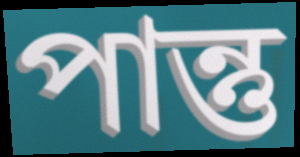
পান্তু